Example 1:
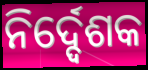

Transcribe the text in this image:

ନିର୍ଦ୍ଦେଶକ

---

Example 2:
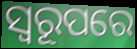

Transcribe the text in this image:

ସ୍ଵରୂପରେ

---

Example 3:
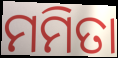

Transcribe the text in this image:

ମମିତା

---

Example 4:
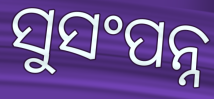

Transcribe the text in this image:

ସୁସଂପନ୍ନ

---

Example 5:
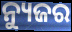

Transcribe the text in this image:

ନ୍ୟୁଜର